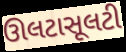
ઊલટાસૂલટી